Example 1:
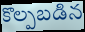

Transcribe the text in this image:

కొల్పబడిన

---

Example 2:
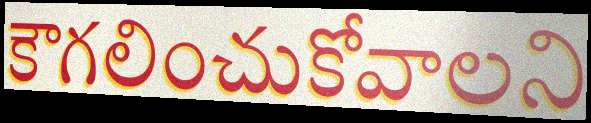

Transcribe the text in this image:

కౌగలించుకోవాలని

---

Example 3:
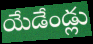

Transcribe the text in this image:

యేడేండ్లు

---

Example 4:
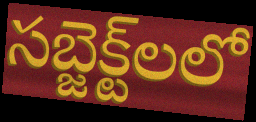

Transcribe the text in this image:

సబ్జెక్ట్‌లలో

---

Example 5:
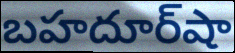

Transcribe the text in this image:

బహదూర్‌షా